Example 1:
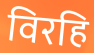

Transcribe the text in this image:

विरहि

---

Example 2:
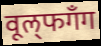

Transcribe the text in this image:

वूल्फगँग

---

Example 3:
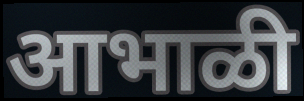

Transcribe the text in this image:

आभाळी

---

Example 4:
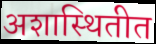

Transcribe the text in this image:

अशास्थितीत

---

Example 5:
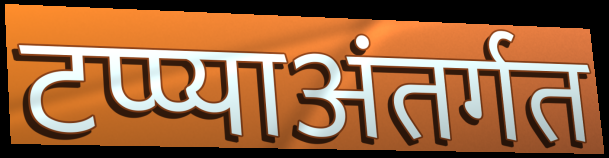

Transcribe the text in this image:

टप्प्याअंतर्गत